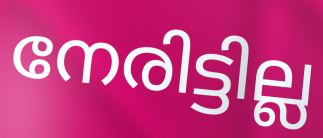
നേരിട്ടില്ല